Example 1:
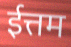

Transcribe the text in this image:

ईत्तम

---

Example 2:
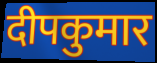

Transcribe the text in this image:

दीपकुमार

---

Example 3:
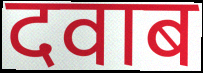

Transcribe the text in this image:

दवाब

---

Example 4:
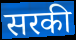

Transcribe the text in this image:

सरकी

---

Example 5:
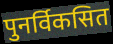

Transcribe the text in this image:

पुनर्विकसित